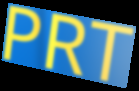
PRT